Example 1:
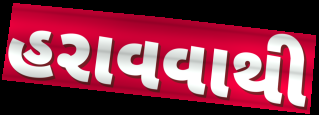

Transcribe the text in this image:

હરાવવાથી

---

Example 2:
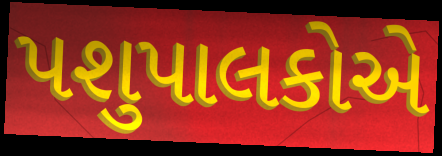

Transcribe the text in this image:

પશુપાલકોએ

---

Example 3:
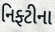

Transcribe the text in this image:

નિફ્ટીના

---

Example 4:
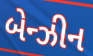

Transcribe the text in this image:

બેન્ઝીન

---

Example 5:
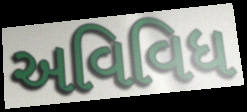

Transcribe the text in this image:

અવિવિધ